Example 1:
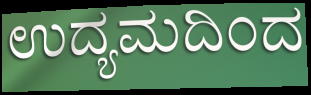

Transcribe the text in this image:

ಉದ್ಯಮದಿಂದ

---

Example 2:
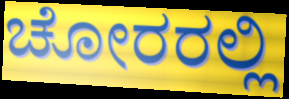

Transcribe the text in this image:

ಚೋರರಲ್ಲಿ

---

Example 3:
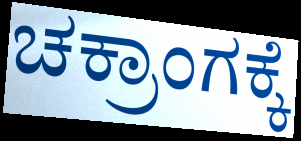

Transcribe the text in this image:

ಚಕ್ರಾಂಗಕ್ಕೆ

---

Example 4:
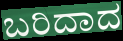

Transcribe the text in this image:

ಬರಿದಾದ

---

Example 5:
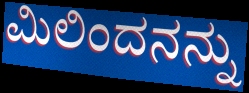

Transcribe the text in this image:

ಮಿಲಿಂದನನ್ನು